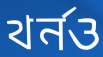
থর্নও